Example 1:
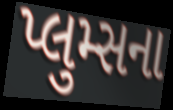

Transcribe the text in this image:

પ્લુમ્સના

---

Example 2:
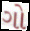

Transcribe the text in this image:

ગો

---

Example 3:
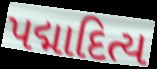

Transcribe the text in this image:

પદ્માદિત્ય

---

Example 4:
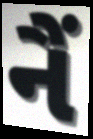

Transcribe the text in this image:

નૈં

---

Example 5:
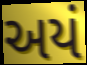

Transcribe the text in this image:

અયં